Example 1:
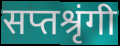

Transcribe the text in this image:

सप्तश्रृंगी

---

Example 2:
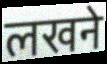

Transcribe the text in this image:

लखने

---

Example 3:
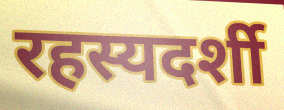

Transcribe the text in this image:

रहस्यदर्शी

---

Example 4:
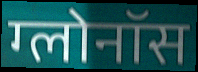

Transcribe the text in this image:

ग्लोनॉस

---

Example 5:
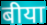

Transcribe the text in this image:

बीया